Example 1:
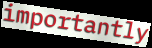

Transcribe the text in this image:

importantly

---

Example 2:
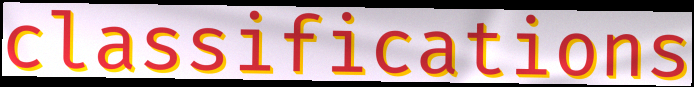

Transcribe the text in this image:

classifications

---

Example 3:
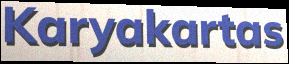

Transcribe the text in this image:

Karyakartas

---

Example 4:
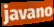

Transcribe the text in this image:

javano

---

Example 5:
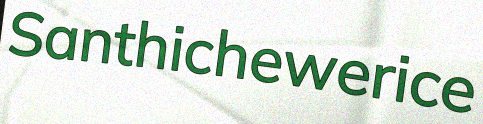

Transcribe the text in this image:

Santhichewerice